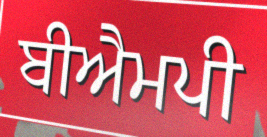
ਬੀਐਮਪੀ